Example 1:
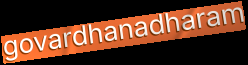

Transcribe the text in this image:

govardhanadharam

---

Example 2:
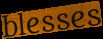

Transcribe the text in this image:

blesses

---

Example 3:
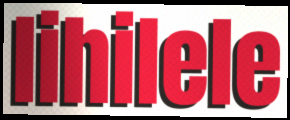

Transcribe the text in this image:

lihilele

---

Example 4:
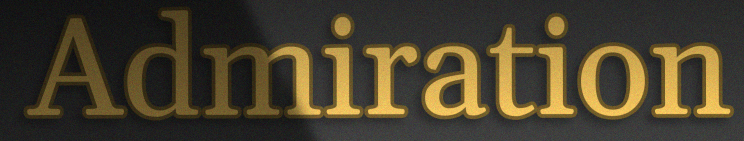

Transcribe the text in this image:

Admiration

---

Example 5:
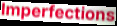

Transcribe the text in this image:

Imperfections